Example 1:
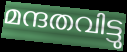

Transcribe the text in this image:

മന്ദതവിട്ടു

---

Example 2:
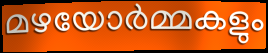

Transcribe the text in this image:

മഴയോർമ്മകളും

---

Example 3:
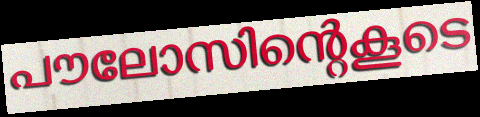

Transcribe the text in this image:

പൗലോസിന്റെകൂടെ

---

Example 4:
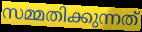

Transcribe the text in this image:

സമ്മതിക്കുന്നത്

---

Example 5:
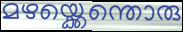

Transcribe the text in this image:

മഴയ്ക്കെന്തൊരു